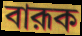
বারূক